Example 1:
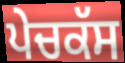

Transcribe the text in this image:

ਪੇਚਕੱਸ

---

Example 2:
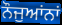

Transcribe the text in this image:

ਨੌਜੁਆਂਨਾਂ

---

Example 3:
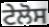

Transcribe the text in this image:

ਟੇਲੋਸ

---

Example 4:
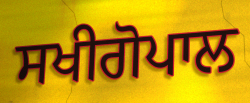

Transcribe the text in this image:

ਸਖੀਗੋਪਾਲ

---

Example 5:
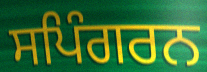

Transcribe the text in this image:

ਸਪਿੰਗਰਨ